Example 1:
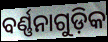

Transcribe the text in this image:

ବର୍ଣ୍ଣନାଗୁଡ଼ିକ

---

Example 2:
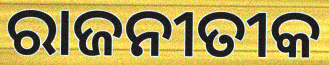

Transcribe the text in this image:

ରାଜନୀତୀକ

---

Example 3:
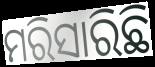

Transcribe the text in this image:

ମରିସାରିଛି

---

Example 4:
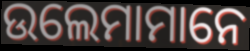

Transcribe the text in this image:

ଉଲେମାମାନେ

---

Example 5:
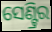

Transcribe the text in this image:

ସେଣ୍ଟ୍ରିର